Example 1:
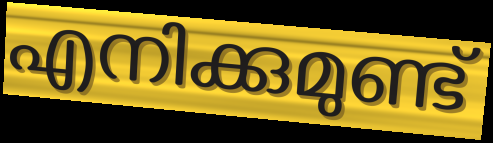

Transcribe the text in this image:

എനിക്കുമുണ്ട്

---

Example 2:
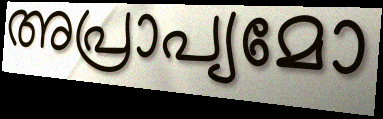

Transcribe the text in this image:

അപ്രാപ്യമോ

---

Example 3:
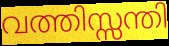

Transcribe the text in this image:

വത്തിസ്സന്തി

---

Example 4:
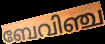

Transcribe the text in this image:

ബേവിഞ്ച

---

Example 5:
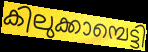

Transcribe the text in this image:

കിലുക്കാമ്പെട്ടി